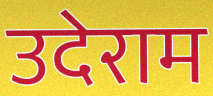
उदेराम